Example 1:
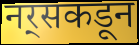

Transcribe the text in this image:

नर्सकडून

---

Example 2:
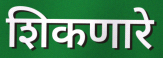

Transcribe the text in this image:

शिकणारे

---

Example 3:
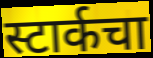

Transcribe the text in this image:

स्टार्कचा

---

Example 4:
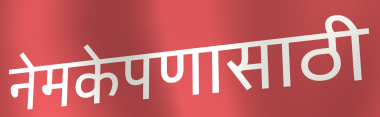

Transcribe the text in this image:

नेमकेपणासाठी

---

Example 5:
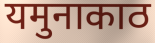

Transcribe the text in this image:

यमुनाकाठ